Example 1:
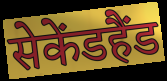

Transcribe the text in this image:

सेकेंडहैंड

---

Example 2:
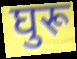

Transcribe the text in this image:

घुरू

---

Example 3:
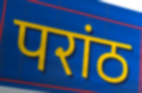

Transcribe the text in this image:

परांठ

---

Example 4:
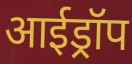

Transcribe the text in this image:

आईड्रॉप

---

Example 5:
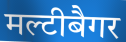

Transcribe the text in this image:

मल्‍टीबैगर